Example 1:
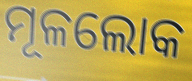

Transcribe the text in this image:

ମୂଳଲୋକ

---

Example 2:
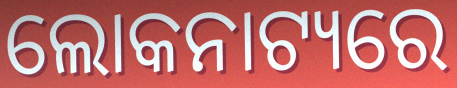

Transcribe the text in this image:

ଲୋକନାଟ୍ୟରେ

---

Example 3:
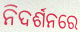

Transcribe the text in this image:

ନିଦର୍ଶନରେ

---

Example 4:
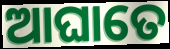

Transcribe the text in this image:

ଆଘାତେ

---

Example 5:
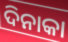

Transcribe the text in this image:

ଦିନାକା